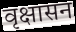
वृक्षासन